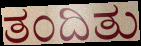
ತಂದಿತು